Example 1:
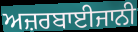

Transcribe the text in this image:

ਅਜ਼ਰਬਾਈਜਾਨੀ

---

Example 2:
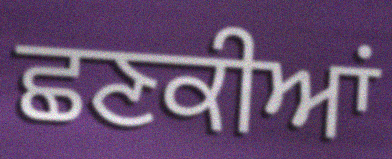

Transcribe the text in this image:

ਛਣਕੀਆਂ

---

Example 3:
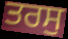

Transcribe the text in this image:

ਤਰਸੁ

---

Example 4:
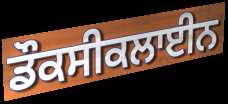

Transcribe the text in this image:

ਡੌਕਸੀਕਲਾਈਨ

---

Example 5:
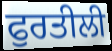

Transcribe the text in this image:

ਫੁਰਤੀਲੀ